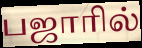
பஜாரில்